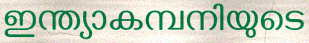
ഇന്ത്യാകമ്പനിയുടെ